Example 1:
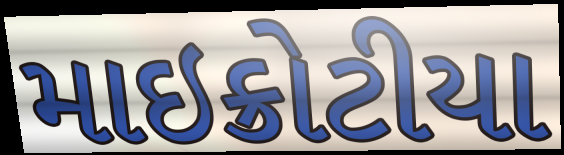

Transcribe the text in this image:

માઇક્રોટીયા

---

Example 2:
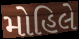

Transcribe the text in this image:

મોહિલે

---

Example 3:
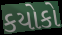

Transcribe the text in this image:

કયોકો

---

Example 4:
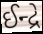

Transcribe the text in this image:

ઈન્દ્રે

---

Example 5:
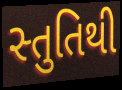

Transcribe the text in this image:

સ્તુતિથી